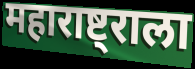
महाराष्ट्राला